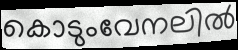
കൊടുംവേനലിൽ